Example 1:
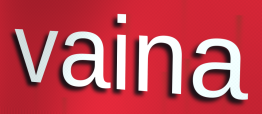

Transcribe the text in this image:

vaina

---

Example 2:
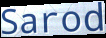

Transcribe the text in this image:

Sarod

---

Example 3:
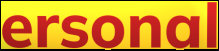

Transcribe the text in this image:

ersonal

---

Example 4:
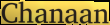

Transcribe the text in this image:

Chanaan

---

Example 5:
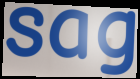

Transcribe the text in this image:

sag